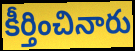
కీర్తించినారు